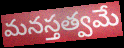
మనస్తత్వమే